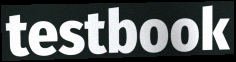
testbook